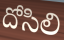
దోసిలి